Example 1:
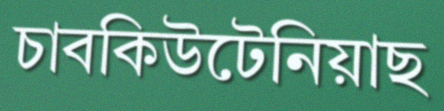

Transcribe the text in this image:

চাবকিউটেনিয়াছ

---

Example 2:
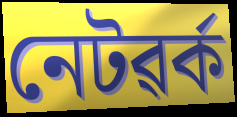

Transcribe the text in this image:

নেটৱৰ্ক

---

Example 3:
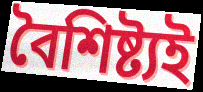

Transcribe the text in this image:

বৈশিষ্ট্যই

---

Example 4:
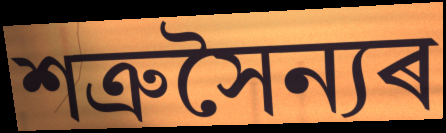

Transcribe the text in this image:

শত্ৰুসৈন্যৰ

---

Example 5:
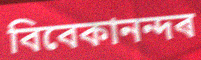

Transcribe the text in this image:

বিবেকানন্দৰ